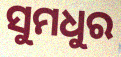
ସୁମଧୁର